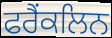
ਫਰੈਂਕਲਿਨ